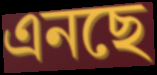
এনছে